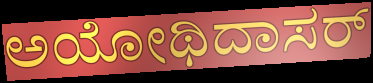
ಅಯೋಥಿದಾಸರ್